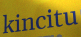
kincitu